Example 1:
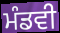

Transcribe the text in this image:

ਮੰਡਵੀ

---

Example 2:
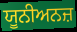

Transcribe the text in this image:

ਯੂਨੀਅਨਜ਼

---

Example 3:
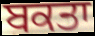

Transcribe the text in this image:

ਬਕਤਾ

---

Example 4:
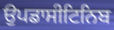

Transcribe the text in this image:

ਉਪਡਾਸੀਟਿਨਿਬ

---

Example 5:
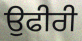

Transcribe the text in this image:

ਉਫੀਰੀ